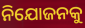
ନିଯୋଜନକୁ